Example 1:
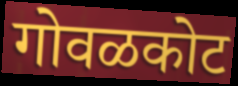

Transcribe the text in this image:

गोवळकोट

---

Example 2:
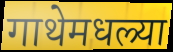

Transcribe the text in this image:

गाथेमधल्या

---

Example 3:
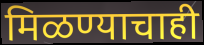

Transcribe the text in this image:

मिळण्याचाही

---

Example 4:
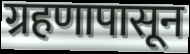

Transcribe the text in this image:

ग्रहणापासून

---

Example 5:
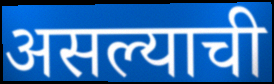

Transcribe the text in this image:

असल्याची